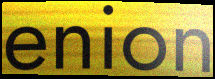
enion